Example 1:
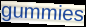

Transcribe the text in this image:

gummies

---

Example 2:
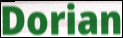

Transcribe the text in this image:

Dorian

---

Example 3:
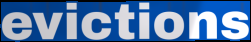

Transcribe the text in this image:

evictions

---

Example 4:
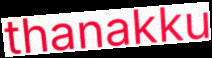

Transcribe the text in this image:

thanakku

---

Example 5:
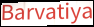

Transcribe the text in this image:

Barvatiya